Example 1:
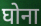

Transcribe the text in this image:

घोना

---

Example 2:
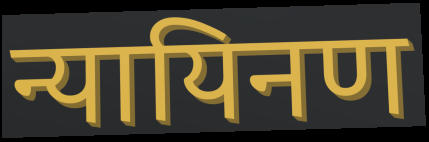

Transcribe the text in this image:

न्यायिनण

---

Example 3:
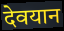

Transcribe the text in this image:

देवयान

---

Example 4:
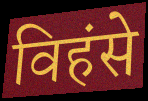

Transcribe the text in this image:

विहंसे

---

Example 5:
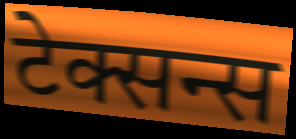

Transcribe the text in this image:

टेक्सन्स